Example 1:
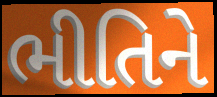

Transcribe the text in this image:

ભીતિને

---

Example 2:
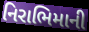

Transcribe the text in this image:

નિરાભિમાની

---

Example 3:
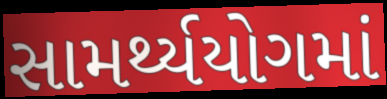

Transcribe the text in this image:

સામર્થ્યયોગમાં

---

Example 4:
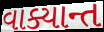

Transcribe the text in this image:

વાક્યાન્ત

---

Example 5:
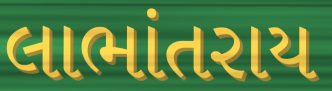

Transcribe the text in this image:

લાભાંતરાય